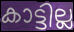
കാട്ടില്ല